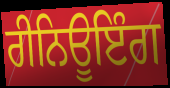
ਰੀਨਿਊਇੰਗ